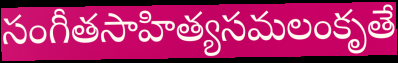
సంగీతసాహిత్యసమలంకృతే